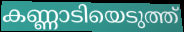
കണ്ണാടിയെടുത്ത്